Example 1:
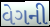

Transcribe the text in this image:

વેગની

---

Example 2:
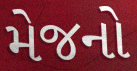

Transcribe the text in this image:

મેજનો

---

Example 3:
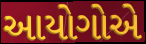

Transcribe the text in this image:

આયોગોએ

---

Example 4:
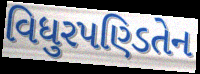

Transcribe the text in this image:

વિધુરપણ્ડિતેન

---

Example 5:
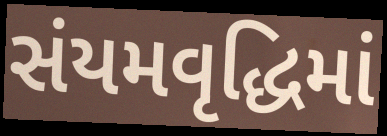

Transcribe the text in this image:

સંયમવૃદ્ધિમાં